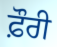
ਫ਼ੌਰੀ